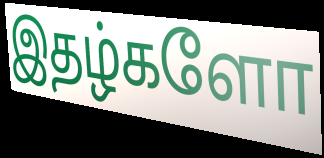
இதழ்களோ